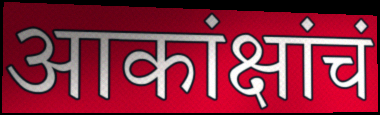
आकांक्षांचं